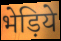
भेड़िये